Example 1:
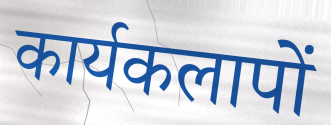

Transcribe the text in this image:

कार्यकलापों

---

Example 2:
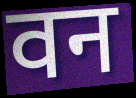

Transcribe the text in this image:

वन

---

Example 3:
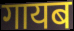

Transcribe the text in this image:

गायब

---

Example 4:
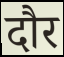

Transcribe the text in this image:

दौर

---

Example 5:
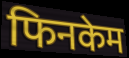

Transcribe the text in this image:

फिनकेम